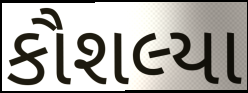
કૌશલ્યા